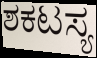
ಶಕಟಸ್ಯ